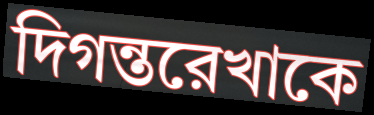
দিগন্তরেখাকে